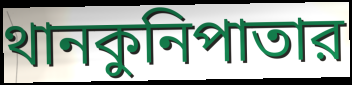
থানকুনিপাতার